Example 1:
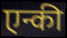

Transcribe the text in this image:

एन्की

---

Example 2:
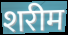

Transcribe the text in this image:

शरीम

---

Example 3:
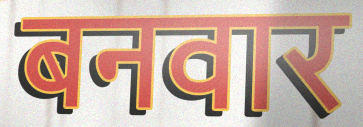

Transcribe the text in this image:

बनवार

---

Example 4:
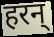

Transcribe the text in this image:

हरन्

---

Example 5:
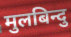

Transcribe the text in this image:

मुलबिन्दु